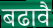
बढावै